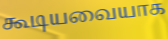
கூடியவையாக